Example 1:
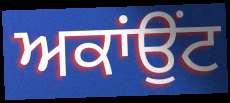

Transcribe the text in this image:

ਅਕਾਂਉਂਟ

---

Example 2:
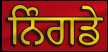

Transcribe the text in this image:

ਨਿੰਗਡੇ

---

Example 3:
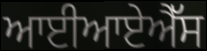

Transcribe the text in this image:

ਆਈਆਏਐੱਸ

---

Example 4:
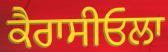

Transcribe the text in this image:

ਕੈਰਾਸੀਓਲਾ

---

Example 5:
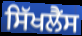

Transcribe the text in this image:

ਸਿੱਖਲੈਂਸ